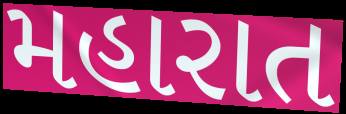
મહારાત